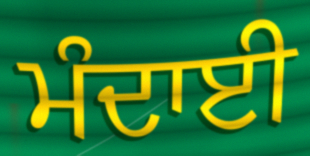
ਮੰਦਾਈ